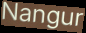
Nangur